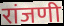
रांजणी